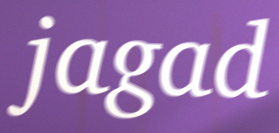
jagad